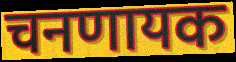
चनणायक